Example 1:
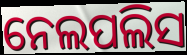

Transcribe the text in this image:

ନେଲପଲିସ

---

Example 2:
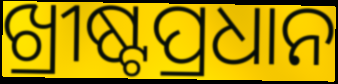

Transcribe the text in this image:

ଖ୍ରୀଷ୍ଟପ୍ରଧାନ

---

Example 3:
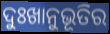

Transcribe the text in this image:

ଦୁଃଖାନୁଭୂତିର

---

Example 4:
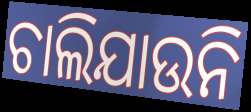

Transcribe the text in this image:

ଚାଲିଯାଉନି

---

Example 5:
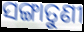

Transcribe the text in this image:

ସଙ୍ଗାତୁଣୀ